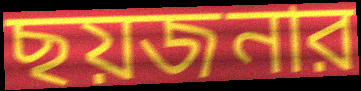
ছয়জনার